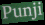
Punji